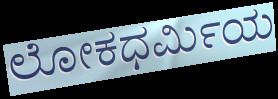
ಲೋಕಧರ್ಮಿಯ